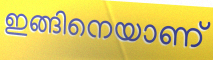
ഇങ്ങിനെയാണ്